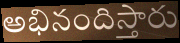
అభినందిస్తారు